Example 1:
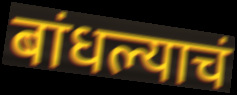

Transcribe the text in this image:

बांधल्याचं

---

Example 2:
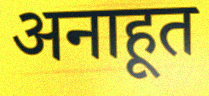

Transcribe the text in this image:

अनाहूत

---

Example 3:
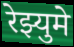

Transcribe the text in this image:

रेझ्युमे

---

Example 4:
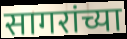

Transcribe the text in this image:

सागरांच्या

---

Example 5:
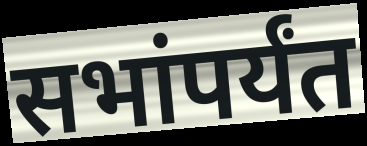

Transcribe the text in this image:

सभांपर्यंत